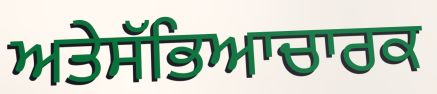
ਅਤੇਸੱਭਿਆਚਾਰਕ